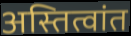
अस्तित्वांत